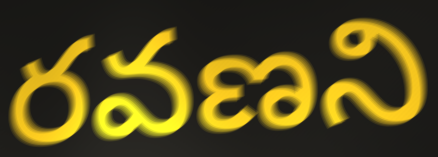
రవణని